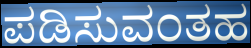
ಪಡಿಸುವಂತಹ